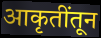
आकृतींतून